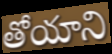
తోయాని